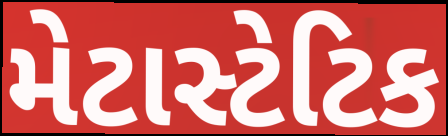
મેટાસ્ટેટિક